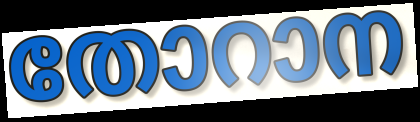
തോറാന